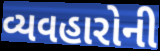
વ્યવહારોની